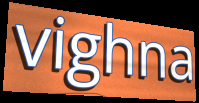
vighna